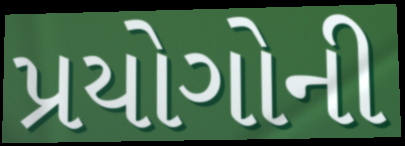
પ્રયોગોની